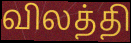
விலத்தி